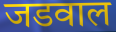
जडवाल